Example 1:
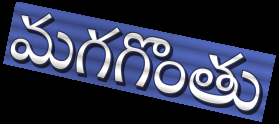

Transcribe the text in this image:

మగగొంతు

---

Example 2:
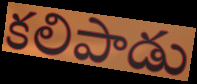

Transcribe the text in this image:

కలిపాడు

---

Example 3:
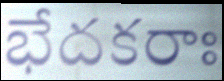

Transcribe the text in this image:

భేదకరాః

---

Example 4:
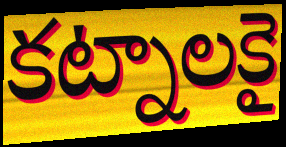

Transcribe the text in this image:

కట్నాలకై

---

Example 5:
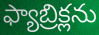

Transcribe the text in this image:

ఫ్యాబ్రిక్లను